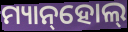
ମ୍ୟାନ୍‌ହୋଲ୍